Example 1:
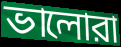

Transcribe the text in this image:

ভালোরা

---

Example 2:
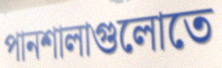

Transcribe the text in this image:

পানশালাগুলোতে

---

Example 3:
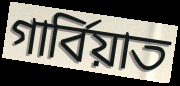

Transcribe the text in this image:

গার্বিয়াত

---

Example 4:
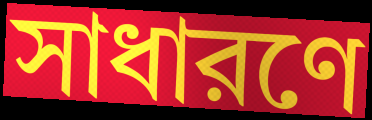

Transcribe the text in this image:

সাধারণে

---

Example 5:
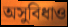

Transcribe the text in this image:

অসুবিধাও